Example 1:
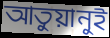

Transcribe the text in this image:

আতুয়ানুই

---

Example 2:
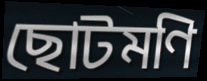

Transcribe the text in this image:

ছোটমণি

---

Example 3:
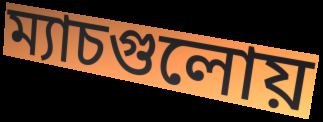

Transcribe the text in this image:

ম্যাচগুলোয়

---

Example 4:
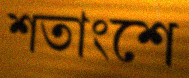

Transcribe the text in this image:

শতাংশে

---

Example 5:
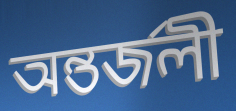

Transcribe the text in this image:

অন্তর্জলী